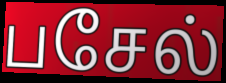
பசேல்